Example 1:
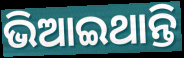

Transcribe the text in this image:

ଭିଆଇଥାନ୍ତି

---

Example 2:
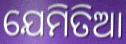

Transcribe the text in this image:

ଯେମିତିଆ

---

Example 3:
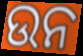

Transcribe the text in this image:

ଉନ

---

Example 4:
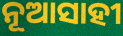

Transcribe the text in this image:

ନୂଆସାହୀ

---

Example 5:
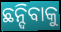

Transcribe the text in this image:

ଛନ୍ଦିବାକୁ